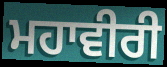
ਮਹਾਵੀਰੀ